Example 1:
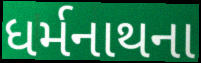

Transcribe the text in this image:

ધર્મનાથના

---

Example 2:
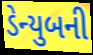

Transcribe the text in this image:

ડેન્યુબની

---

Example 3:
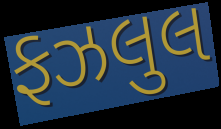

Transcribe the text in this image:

ફઝલુલ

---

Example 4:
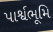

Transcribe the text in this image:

પાર્શ્વભૂમિ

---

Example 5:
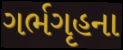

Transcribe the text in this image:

ગર્ભગૃહના